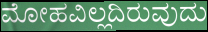
ಮೋಹವಿಲ್ಲದಿರುವುದು